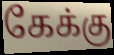
கேக்கு